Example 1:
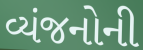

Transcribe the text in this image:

વ્યંજનોની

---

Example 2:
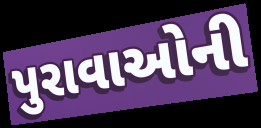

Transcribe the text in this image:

પુરાવાઓની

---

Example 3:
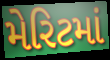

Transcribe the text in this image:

મેરિટમાં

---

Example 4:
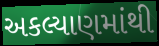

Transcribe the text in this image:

અકલ્યાણમાંથી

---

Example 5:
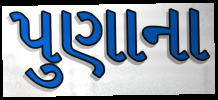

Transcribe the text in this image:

પુણાના